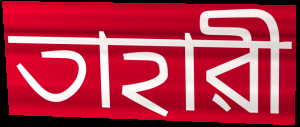
তাহাৱী